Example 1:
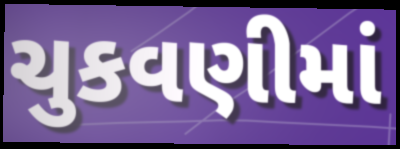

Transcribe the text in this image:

ચુકવણીમાં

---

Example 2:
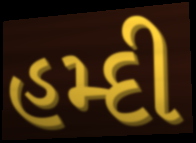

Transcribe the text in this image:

હમ્દી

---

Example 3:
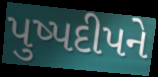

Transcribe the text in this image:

પુષ્પદીપને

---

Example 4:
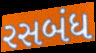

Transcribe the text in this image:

રસબંધ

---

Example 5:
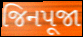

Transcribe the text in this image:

જિનપૂજા